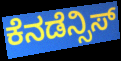
ಕೆನಡೆನ್ಸಿಸ್